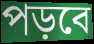
পড়বে